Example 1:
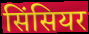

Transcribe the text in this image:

सिंसियर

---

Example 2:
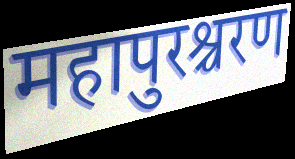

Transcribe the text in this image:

महापुरश्चरण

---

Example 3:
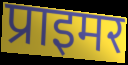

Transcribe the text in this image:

प्राइमर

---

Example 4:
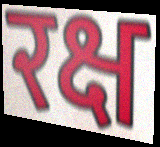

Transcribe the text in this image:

रक्ष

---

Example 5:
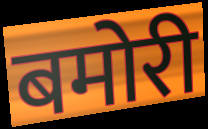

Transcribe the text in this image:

बमोरी